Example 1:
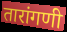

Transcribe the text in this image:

तारांगणी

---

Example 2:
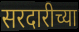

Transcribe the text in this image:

सरदारीच्या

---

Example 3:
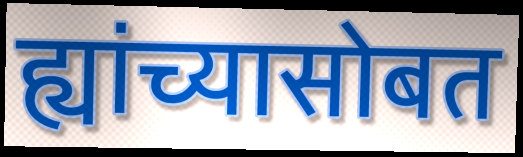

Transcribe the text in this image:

ह्यांच्यासोबत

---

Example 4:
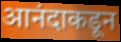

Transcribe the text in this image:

आनंदाकडून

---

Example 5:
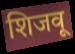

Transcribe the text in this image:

शिजवू